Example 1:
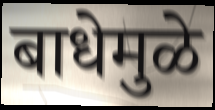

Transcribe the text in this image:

बाधेमुळे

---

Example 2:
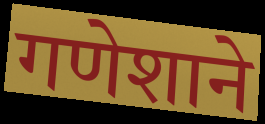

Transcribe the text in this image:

गणेशाने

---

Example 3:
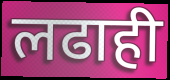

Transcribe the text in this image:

लढाही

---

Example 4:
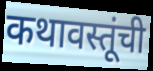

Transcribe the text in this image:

कथावस्तूंची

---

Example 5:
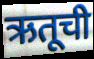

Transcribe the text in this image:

ऋतूची